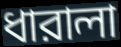
ধারালা